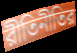
রীতিনীতির